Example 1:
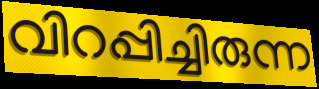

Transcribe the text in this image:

വിറപ്പിച്ചിരുന്ന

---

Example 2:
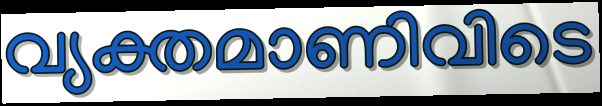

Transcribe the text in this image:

വ്യക്തമാണിവിടെ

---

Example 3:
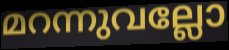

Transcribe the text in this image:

മറന്നുവല്ലോ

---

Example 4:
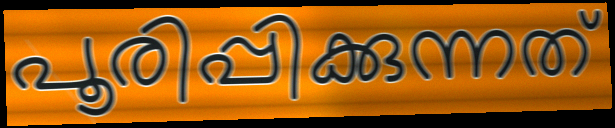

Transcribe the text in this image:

പൂരിപ്പിക്കുന്നത്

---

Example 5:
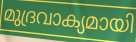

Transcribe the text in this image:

മുദ്രവാക്യമായി